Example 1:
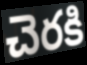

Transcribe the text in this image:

చెరకి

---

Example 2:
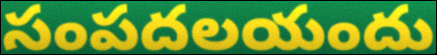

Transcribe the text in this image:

సంపదలయందు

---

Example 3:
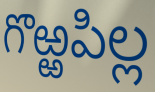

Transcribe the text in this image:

గొఱ్ఱపిల్ల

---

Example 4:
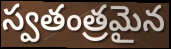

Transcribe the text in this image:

స్వతంత్రమైన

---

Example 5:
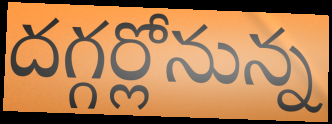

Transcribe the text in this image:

దగ్గర్లోనున్న